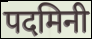
पदमिनी